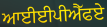
ਆਈਈਪੀਐੱਫਏ